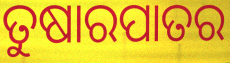
ତୁଷାରପାତର